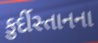
કુર્દીસ્તાનના